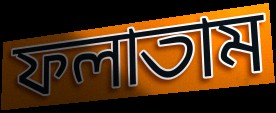
ফলাতাম